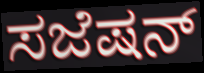
ಸಜೆಷನ್